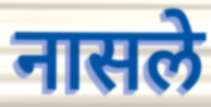
नासले